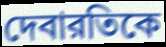
দেবারতিকে